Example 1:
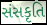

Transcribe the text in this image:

સંસકૃતિ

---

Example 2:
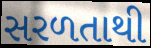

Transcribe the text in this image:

સરળતાથી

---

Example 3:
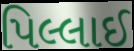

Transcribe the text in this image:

પિલ્લાઈ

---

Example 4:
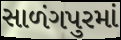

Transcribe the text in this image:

સાળંગપુરમાં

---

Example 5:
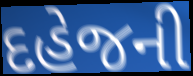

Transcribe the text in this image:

દહેજની